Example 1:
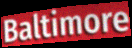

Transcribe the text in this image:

Baltimore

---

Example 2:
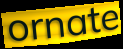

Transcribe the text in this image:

ornate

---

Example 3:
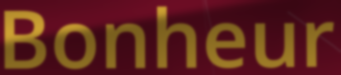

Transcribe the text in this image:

Bonheur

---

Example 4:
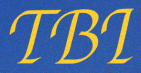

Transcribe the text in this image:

TBI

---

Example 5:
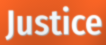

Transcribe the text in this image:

Justice